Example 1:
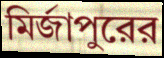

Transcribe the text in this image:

মির্জাপুরের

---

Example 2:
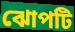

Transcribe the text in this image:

ঝোপটি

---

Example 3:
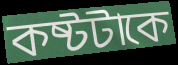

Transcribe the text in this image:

কষ্টটাকে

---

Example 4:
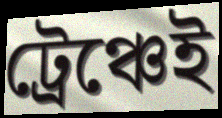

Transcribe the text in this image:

ট্রেঞ্চেই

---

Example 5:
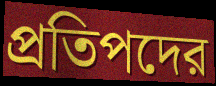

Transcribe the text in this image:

প্রতিপদের